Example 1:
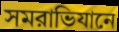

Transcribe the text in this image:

সমরাভিযানে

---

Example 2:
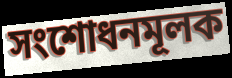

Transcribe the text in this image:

সংশোধনমূলক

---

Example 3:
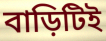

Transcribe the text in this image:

বাড়িটিই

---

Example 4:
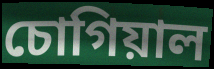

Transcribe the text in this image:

চোগিয়াল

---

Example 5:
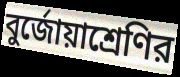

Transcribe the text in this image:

বুর্জোয়াশ্রেণির